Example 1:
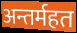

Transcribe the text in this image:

अन्तर्महत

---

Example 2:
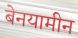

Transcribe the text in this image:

बेनयामीन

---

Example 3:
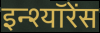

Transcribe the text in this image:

इन्श्यॉरेंस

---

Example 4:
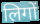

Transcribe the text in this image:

लिगों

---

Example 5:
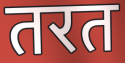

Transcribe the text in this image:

तरत